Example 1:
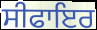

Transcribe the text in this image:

ਸੀਫਾਇਰ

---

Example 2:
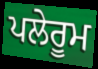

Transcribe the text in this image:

ਪਲੇਰੂਮ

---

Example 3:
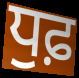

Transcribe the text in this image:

ਧੁਫ਼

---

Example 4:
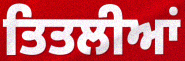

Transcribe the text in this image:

ਤਿਤਲੀਆਂ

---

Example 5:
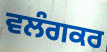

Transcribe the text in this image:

ਵਲੰਗਕਰ